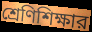
শ্রেণিশিক্ষার